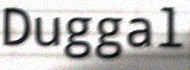
Duggal